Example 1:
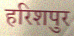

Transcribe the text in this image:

हरिशपुर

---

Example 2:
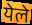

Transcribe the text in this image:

येले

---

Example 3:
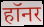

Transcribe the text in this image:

हॉनर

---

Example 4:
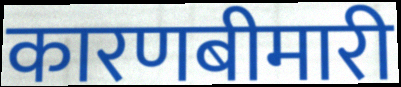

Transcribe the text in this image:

कारणबीमारी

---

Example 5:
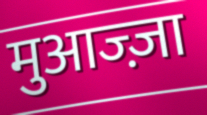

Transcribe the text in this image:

मुआज्ज़ा